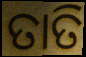
ତାତି